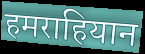
हमराहियान